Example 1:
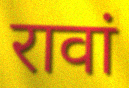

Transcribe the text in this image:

रावां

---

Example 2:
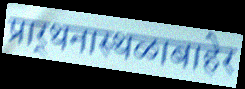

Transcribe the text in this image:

प्रार्थनास्थळाबाहेर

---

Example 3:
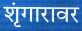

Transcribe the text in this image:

शृंगारावर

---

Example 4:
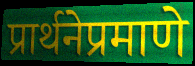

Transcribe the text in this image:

प्रार्थनेप्रमाणे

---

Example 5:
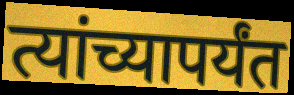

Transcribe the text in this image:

त्यांच्यापर्यंत